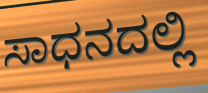
ಸಾಧನದಲ್ಲಿ